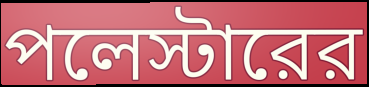
পলেস্টারের